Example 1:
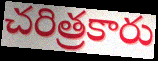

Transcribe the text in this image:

చరిత్రకారు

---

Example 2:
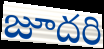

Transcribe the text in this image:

జూదరి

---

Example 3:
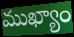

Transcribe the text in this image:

ముఖ్యాం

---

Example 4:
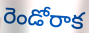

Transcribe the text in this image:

రెండోరాక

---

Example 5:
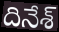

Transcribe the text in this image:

దినేశ్